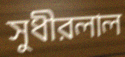
সুধীরলাল